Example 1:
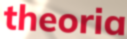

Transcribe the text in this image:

theoria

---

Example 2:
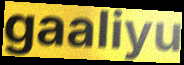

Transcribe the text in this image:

gaaliyu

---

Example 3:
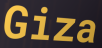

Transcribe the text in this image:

Giza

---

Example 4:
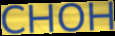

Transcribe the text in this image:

CHOH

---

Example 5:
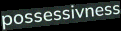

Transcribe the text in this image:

possessivness